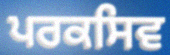
ਪਰਕਸਿਵ